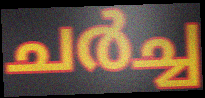
ചർച്ച